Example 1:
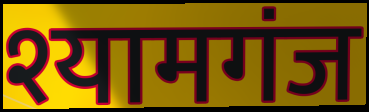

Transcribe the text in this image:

श्यामगंज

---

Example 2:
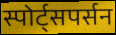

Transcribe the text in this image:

स्पोर्ट्सपर्सन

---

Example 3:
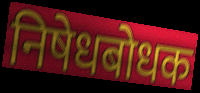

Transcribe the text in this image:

निषेधबोधक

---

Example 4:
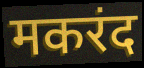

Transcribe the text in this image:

मकरंद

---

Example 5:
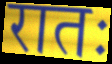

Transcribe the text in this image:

रातः